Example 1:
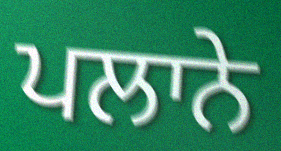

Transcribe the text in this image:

ਪਲਾਨੇ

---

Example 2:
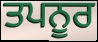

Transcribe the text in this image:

ਤਪਨੂਰ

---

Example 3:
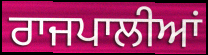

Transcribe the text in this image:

ਰਾਜਪਾਲੀਆਂ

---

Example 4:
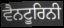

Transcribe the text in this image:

ਵੈਨਟੂਰਿਨੀ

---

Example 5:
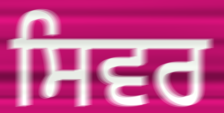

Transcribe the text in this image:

ਸਿਵਰ